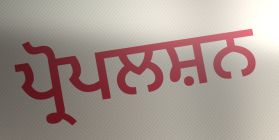
ਪ੍ਰੋਪਲਸ਼ਨ